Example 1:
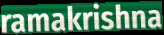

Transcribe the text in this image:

ramakrishna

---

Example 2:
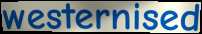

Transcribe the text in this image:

westernised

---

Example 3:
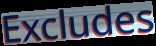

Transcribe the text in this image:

Excludes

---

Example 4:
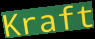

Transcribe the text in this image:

Kraft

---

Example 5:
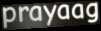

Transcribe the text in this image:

prayaag